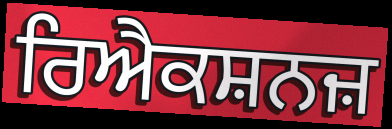
ਰਿਐਕਸ਼ਨਜ਼